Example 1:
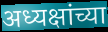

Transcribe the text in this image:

अध्यक्षांच्या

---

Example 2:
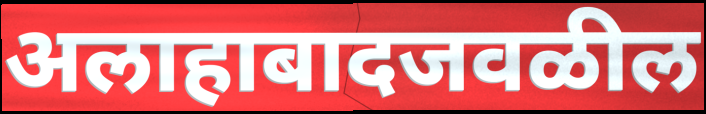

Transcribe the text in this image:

अलाहाबादजवळील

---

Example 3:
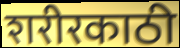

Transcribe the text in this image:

शरीरकाठी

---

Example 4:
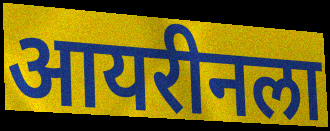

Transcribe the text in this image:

आयरीनला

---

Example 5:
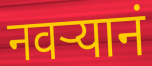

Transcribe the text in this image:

नवर्‍यानं